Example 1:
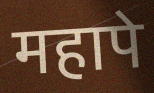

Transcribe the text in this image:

महापे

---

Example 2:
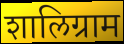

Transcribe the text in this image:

शालिग्राम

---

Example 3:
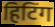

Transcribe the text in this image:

हिटिंग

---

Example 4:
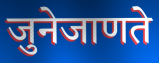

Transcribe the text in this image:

जुनेजाणते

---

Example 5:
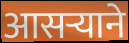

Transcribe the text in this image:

आसर्‍याने